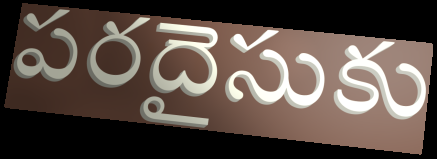
పరదైసుకు